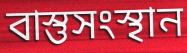
বাস্তুসংস্থান